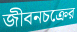
জীবনচক্রের